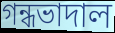
গন্ধভাদাল